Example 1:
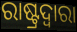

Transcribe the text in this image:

ରାଷ୍ଟ୍ରଦ୍ଵାରା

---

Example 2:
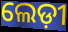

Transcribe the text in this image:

ଲେଡ଼ୀ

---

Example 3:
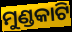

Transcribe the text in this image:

ମୁଣ୍ଡକାଟି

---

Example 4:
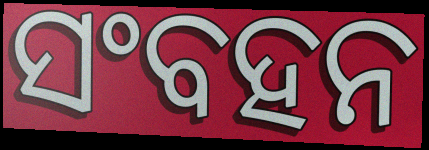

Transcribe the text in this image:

ସଂବହନ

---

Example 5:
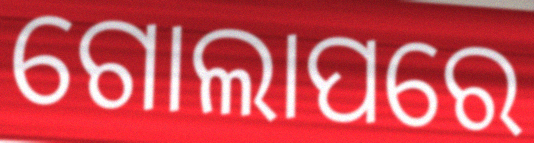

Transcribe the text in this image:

ଗୋଲାପରେ